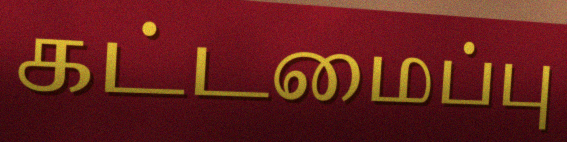
கட்டமைப்பு